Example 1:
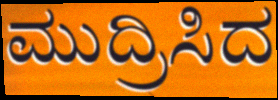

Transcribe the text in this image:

ಮುದ್ರಿಸಿದ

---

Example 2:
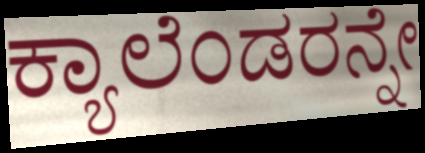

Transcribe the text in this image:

ಕ್ಯಾಲೆಂಡರನ್ನೇ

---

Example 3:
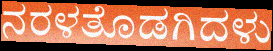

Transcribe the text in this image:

ನರಳತೊಡಗಿದಳು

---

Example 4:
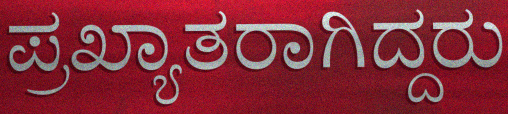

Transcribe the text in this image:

ಪ್ರಖ್ಯಾತರಾಗಿದ್ದರು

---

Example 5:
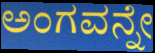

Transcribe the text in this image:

ಅಂಗವನ್ನೇ